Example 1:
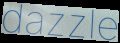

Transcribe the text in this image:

dazzle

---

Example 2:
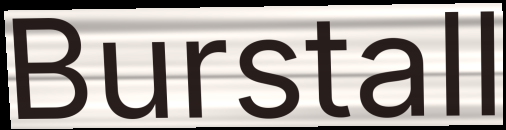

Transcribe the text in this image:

Burstall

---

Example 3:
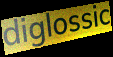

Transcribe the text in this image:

diglossic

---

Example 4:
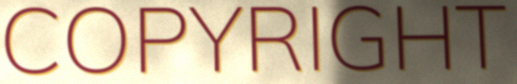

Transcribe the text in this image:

COPYRIGHT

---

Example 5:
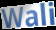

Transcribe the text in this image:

Wali